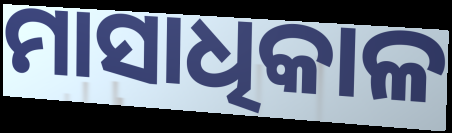
ମାସାଧିକାଳ